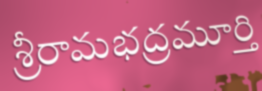
శ్రీరామభద్రమూర్తి